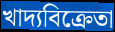
খাদ্যবিক্রেতা